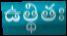
ఉత్థితః